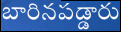
బారినపడ్డారు